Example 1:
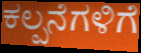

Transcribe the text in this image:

ಕಲ್ಪನೆಗಳಿಗೆ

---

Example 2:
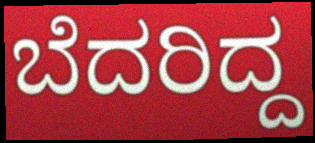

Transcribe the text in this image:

ಬೆದರಿದ್ದ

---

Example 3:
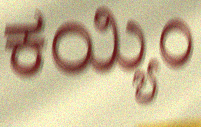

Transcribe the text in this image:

ಕಯ್ಯಿಂ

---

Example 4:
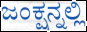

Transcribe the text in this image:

ಜಂಕ್ಷನ್ನಲ್ಲಿ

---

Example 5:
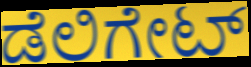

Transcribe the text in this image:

ಡೆಲಿಗೇಟ್